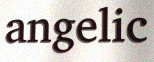
angelic